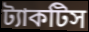
ট্যাকটিস